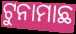
ଟୁନାମାଛ